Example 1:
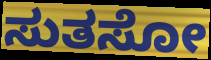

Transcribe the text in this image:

ಸುತಸೋ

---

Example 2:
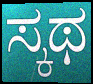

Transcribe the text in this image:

ಸ್ಕಥ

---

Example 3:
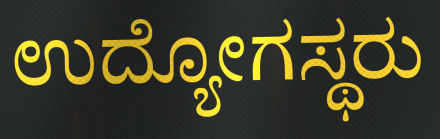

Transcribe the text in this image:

ಉದ್ಯೋಗಸ್ಥರು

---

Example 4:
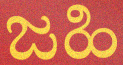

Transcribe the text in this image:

ಜಹಿ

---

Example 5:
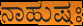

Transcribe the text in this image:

ನಾಹುಷಃ